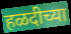
हळदीच्या